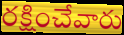
రక్షించేవారు